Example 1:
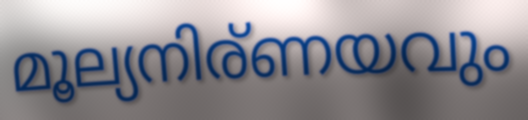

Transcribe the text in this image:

മൂല്യനിര്ണയവും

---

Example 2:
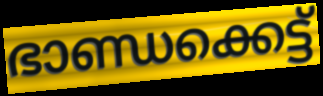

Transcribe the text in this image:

ഭാണ്ഡക്കെട്ട്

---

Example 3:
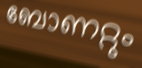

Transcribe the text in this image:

ബോണറ്റും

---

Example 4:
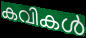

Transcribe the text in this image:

കവികൾ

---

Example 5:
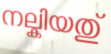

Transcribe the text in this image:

നല്കിയതു്